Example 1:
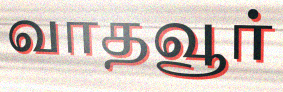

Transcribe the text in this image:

வாதவூர்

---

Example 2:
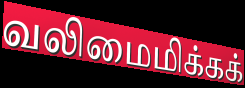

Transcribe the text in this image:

வலிமைமிக்கக்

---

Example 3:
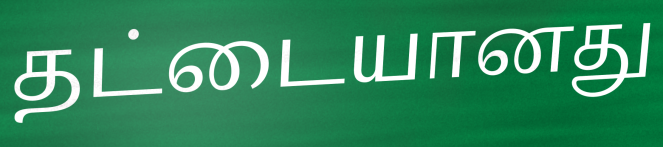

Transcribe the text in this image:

தட்டையானது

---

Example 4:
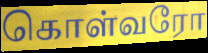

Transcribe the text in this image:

கொள்வரோ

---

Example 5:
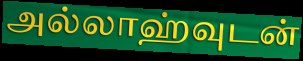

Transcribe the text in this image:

அல்லாஹ்வுடன்